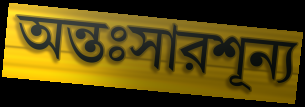
অন্তঃসারশূন্য